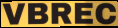
VBREC